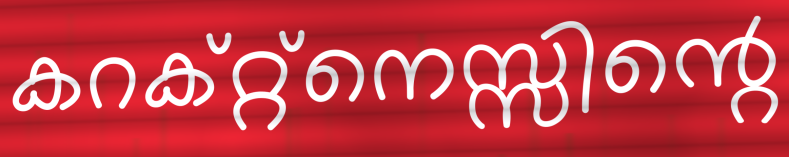
കറക്റ്റ്നെസ്സിന്റെ